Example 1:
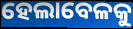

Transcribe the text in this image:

ହେଲାବେଳକୁ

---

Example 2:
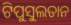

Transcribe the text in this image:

ଟିପୁସୁଲତାନ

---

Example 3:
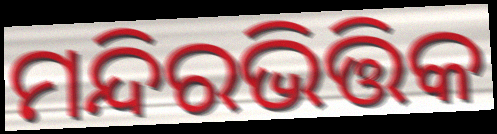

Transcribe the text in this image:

ମନ୍ଦିରଭିତ୍ତିକ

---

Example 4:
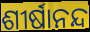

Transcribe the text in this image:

ଶୀର୍ଷାନନ୍ଦ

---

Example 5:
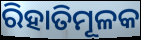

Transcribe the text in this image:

ରିହାତିମୂଳକ